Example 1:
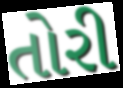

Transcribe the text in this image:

તોરી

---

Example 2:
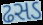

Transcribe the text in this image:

ઢસડ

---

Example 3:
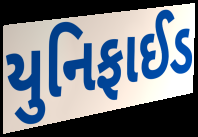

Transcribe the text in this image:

યુનિફાઈડ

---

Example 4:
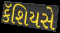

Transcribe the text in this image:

કૅશિયસે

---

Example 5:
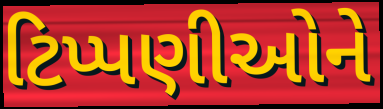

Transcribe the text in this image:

ટિપ્પણીઓને